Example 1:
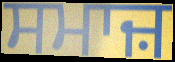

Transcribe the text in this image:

ਸਮਾਜ਼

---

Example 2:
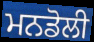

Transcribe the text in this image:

ਮਨਡੋਲੀ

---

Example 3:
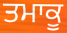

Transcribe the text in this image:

ਤਮਾਕੂ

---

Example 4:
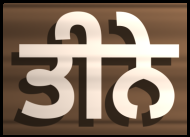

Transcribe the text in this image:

ਤੀਨੇ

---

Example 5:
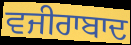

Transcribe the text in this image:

ਵਜੀਰਾਬਾਦ